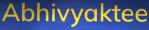
Abhivyaktee